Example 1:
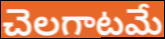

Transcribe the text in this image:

చెలగాటమే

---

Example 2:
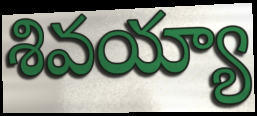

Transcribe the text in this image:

శివయ్యా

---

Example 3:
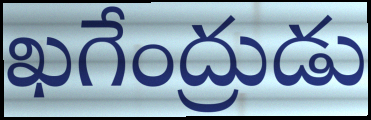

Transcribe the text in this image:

ఖగేంద్రుడు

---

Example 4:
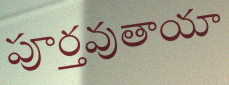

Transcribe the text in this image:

పూర్తవుతాయా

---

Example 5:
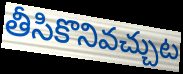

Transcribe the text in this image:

తీసికొనివచ్చుట